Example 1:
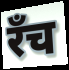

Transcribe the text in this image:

रँच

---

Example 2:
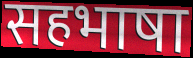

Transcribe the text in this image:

सहभाषा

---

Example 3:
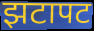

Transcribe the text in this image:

झटापट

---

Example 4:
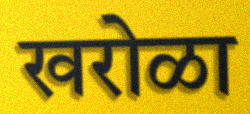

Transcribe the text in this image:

खरोळा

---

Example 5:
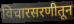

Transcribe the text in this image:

विचारसरणीतून